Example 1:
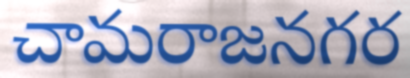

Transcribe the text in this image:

చామరాజనగర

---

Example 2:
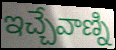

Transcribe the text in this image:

ఇచ్చేవాణ్ని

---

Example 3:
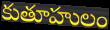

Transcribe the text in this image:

కుతూహులం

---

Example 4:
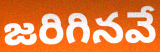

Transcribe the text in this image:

జరిగినవే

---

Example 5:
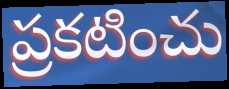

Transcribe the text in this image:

ప్రకటించు